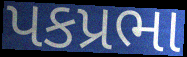
પકપ્રભા